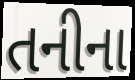
તનીના